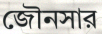
জৌনসার